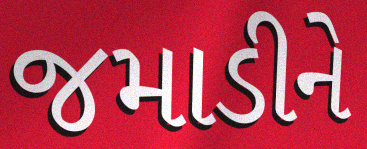
જમાડીને